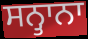
ਸਨ੍ਤਾਨਾ